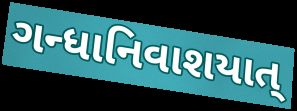
ગન્ધાનિવાશયાત્